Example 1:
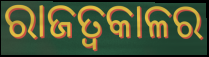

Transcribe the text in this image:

ରାଜତ୍ୱକାଳର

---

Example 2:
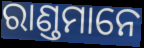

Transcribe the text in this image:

ରାଣ୍ଡମାନେ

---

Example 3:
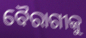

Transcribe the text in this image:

ବୈରାଗୀକୁ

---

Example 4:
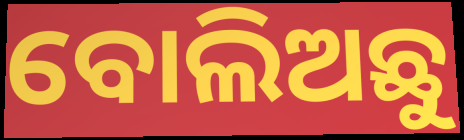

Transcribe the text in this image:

ବୋଲିଅଛୁ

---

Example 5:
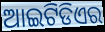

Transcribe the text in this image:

ଆଇଟିଡିଏର